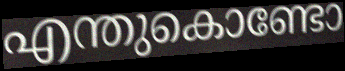
എന്തുകൊണ്ടോ